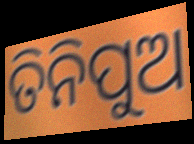
ତିନିପୁଅ